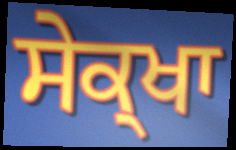
ਸੇਕ੍ਖਾ